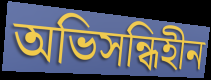
অভিসন্ধিহীন